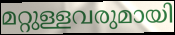
മറ്റുള്ളവരുമായി